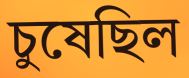
চুষেছিল